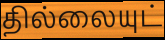
தில்லையுட்